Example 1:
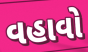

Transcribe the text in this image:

વહાવો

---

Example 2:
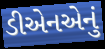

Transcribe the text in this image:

ડીએનએનું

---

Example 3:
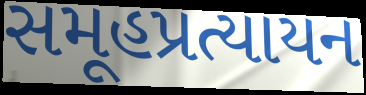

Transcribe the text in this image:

સમૂહપ્રત્યાયન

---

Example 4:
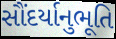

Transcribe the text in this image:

સૌંદર્યાનુભૂતિ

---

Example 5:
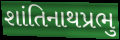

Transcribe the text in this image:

શાંતિનાથપ્રભુ